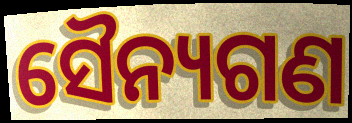
ସୈନ୍ୟଗଣ